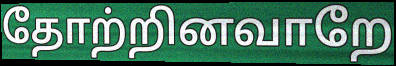
தோற்றினவாறே